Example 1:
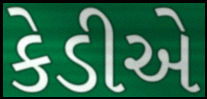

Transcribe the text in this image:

કેડીએ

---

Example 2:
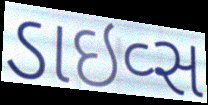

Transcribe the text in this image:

ડાઇવ્સ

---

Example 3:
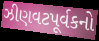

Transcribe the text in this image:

ઝીણવટપૂર્વકનો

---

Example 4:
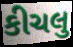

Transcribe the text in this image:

કીચલુ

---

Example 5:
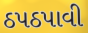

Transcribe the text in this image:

ઠપઠપાવી